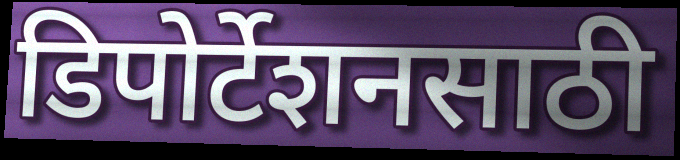
डिपोर्टेशनसाठी